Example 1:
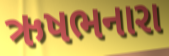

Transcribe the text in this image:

ઋષભનારા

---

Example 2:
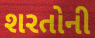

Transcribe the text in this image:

શરતોની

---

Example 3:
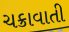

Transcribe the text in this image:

ચક્રાવાતી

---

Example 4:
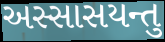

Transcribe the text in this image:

અસ્સાસયન્તુ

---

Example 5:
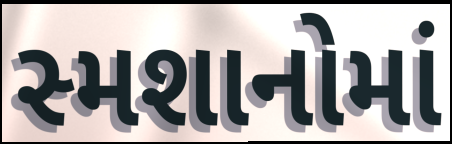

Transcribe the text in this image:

સ્મશાનોમાં